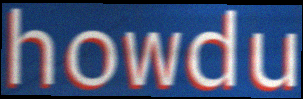
howdu